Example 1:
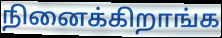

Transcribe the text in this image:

நினைக்கிறாங்க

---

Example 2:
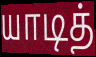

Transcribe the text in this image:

யாடித்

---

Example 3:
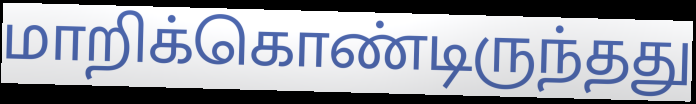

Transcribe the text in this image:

மாறிக்கொண்டிருந்தது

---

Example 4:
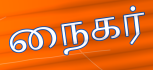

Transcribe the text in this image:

நைகர்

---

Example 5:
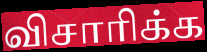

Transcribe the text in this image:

விசாரிக்க